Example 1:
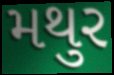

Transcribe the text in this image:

મથુર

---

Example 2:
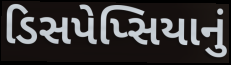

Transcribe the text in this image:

ડિસપેપ્સિયાનું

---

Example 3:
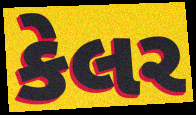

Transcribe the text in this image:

કેલર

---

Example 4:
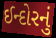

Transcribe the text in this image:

ઈન્દોરનું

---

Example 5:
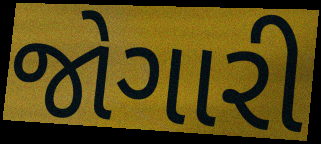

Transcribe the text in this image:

જોગારી